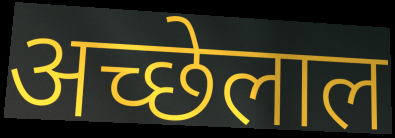
अच्छेलाल